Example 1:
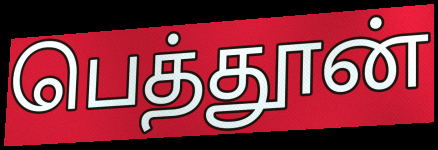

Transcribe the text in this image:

பெத்தூன்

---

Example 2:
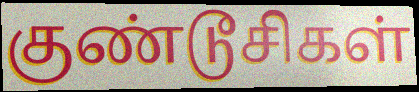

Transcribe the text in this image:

குண்டூசிகள்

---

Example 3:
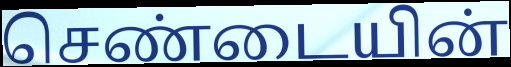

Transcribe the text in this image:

செண்டையின்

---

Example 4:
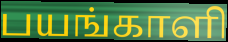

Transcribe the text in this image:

பயங்காளி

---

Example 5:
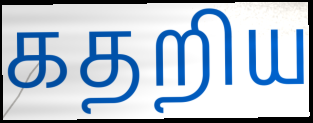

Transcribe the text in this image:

கதறிய